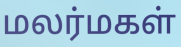
மலர்மகள்